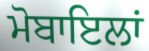
ਮੋਬਾਇਲਾਂ